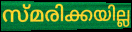
സ്മരിക്കയില്ല